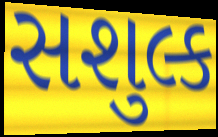
સશુલ્ક